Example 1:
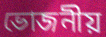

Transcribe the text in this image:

ভোজনীয়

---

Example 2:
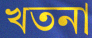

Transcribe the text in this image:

খতনা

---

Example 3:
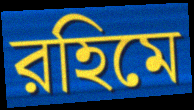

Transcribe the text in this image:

রহিমে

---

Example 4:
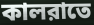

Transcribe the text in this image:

কালরাতে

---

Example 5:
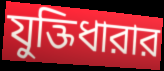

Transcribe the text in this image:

যুক্তিধারার